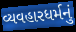
વ્યવહારધર્મનું